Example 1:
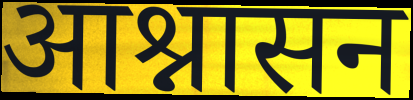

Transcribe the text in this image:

आश्नासन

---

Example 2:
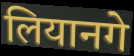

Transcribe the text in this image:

लियानगे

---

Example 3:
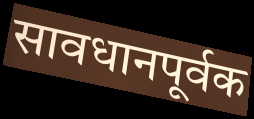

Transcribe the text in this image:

सावधानपूर्वक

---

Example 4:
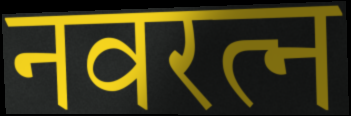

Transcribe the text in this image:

नवरत्न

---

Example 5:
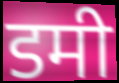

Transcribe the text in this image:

डमी